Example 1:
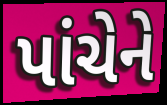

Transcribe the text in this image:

પાંચેને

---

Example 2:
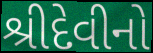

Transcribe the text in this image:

શ્રીદેવીનો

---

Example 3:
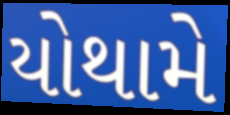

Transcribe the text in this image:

યોથામે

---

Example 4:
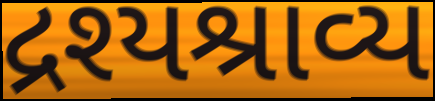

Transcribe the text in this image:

દ્રશ્યશ્રાવ્ય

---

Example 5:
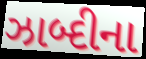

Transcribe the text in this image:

ઝાબ્દીના